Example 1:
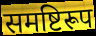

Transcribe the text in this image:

समष्टिरूप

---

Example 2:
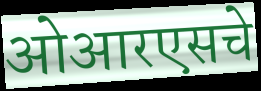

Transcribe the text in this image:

ओआरएसचे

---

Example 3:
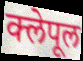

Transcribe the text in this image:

क्लेपूल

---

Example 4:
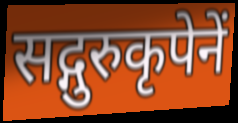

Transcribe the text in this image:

सद्गुरुकृपेनें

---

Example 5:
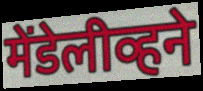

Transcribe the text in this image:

मेंडेलीव्हने